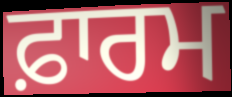
ਫ਼ਾਰਮ